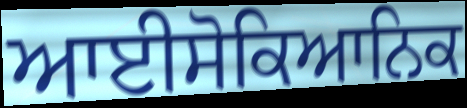
ਆਈਸੋਕਿਆਨਿਕ